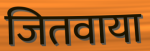
जितवाया